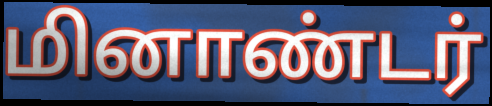
மினாண்டர்